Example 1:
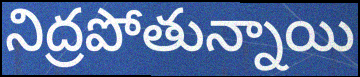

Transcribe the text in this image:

నిద్రపోతున్నాయి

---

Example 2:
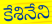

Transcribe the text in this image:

కేశినేని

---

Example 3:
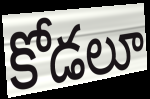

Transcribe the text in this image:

కోడలూ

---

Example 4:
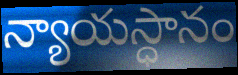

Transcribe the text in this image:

న్యాయస్ధానం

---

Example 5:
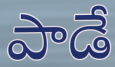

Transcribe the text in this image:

పాడే